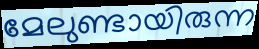
മേലുണ്ടായിരുന്ന